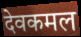
देवकमल